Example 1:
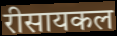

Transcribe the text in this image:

रीसायकल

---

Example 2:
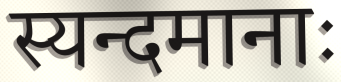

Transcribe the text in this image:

स्यन्दमानाः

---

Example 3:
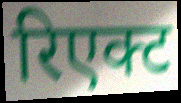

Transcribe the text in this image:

रिएक्ट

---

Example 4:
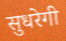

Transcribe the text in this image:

सुधरेगी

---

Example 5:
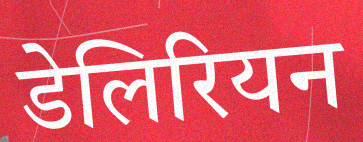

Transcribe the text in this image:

डेलिरियन